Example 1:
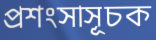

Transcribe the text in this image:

প্রশংসাসূচক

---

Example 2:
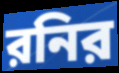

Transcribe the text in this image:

রনির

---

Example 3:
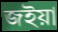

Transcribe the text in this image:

জইয়া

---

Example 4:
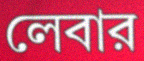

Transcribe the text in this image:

লেবার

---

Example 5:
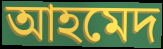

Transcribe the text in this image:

আহমেদ